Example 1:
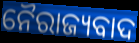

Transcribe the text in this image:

ନୈରାଜ୍ୟବାଦ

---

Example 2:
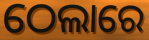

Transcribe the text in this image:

ଠେଲାରେ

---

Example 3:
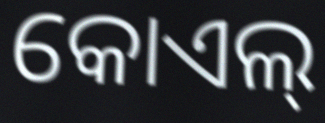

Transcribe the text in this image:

କୋଏଲ୍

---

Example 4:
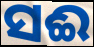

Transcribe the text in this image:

ସଈ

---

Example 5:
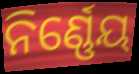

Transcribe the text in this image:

ନିର୍ଣ୍ଣେୟ